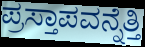
ಪ್ರಸ್ತಾಪವನ್ನೆತ್ತಿ